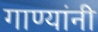
गाण्यांनी